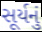
સૂર્યનું